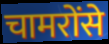
चामरोंसे